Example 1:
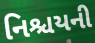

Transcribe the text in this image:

નિશ્ચયની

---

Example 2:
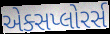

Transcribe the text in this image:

એક્સપ્લોરર્સ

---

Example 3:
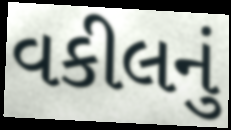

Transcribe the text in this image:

વકીલનું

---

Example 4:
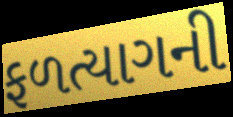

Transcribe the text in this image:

ફળત્યાગની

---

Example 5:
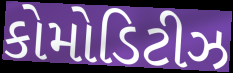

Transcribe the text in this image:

કોમોડિટીઝ